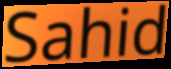
Sahid